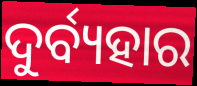
ଦୁର୍ବ୍ୟହାର